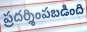
ప్రదర్శింపబడింది